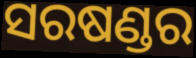
ସରଷଣ୍ଡର